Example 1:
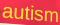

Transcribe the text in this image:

autism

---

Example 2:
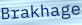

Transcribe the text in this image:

Brakhage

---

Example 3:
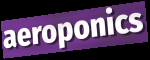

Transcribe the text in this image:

aeroponics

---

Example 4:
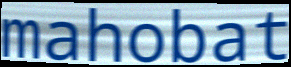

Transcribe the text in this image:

mahobat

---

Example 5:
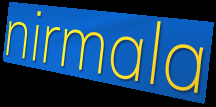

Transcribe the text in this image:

nirmala